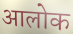
आलोक